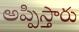
అప్పిస్తారు